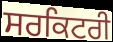
ਸਰਕਿਟਰੀ